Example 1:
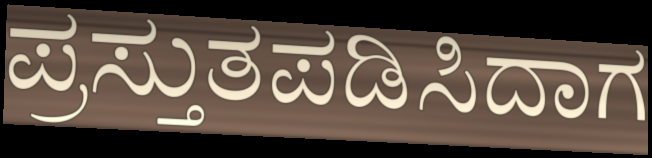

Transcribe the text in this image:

ಪ್ರಸ್ತುತಪಡಿಸಿದಾಗ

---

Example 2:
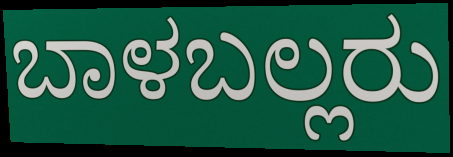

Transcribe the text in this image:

ಬಾಳಬಲ್ಲರು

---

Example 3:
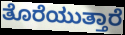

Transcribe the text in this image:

ತೊರೆಯುತ್ತಾರೆ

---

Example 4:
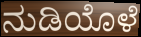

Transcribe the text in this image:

ನುಡಿಯೊಳೆ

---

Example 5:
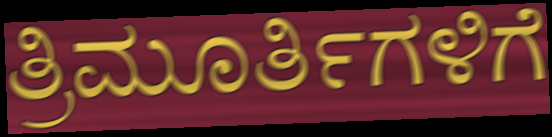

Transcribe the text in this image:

ತ್ರಿಮೂರ್ತಿಗಳಿಗೆ